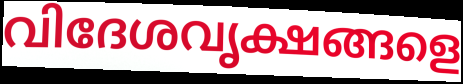
വിദേശവൃക്ഷങ്ങളെ